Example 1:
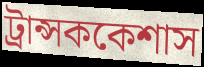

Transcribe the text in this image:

ট্রান্সককেশাস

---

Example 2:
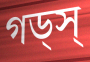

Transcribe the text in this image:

গড্স্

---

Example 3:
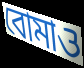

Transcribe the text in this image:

বোমাও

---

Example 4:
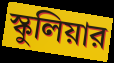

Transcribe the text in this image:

স্কুলিয়ার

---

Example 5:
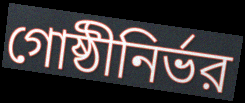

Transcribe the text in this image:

গোষ্ঠীনির্ভর